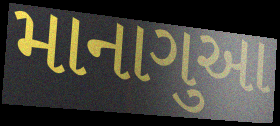
માનાગુઆ